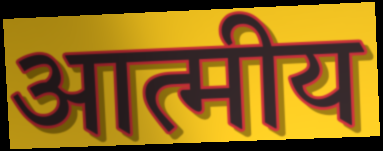
आत्मीय